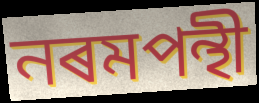
নৰমপন্থী